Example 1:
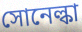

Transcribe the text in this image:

সোনেল্কা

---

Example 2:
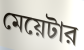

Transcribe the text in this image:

মেয়েটার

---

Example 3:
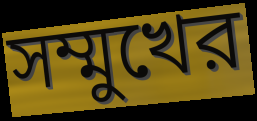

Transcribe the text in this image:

সম্মুখের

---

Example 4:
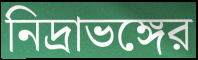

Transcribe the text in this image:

নিদ্রাভঙ্গের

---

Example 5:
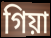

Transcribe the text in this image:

গিয়া